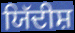
ਯਿੱਦੀਸ਼